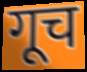
गूच